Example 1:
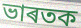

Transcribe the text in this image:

ভাৰতক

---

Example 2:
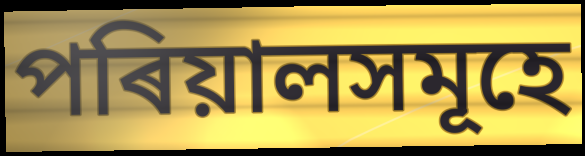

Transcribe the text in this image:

পৰিয়ালসমূহে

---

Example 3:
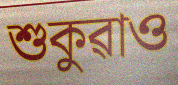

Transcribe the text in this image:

শুকুৱাও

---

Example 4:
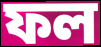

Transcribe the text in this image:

ফল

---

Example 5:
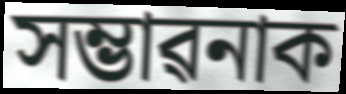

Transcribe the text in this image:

সম্ভাৱনাক